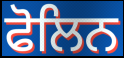
ਫੋਲਿਨ